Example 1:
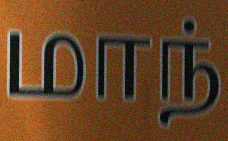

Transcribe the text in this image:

மாந்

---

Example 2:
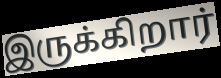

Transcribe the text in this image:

இருக்கிறார்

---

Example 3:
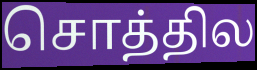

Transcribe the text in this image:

சொத்தில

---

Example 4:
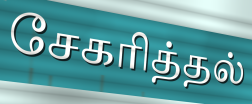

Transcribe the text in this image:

சேகரித்தல்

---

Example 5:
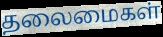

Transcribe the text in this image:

தலைமைகள்